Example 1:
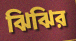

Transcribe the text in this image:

ঝিঝির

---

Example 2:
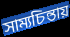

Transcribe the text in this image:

সাম্যচিন্তায়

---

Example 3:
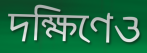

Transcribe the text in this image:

দক্ষিণেও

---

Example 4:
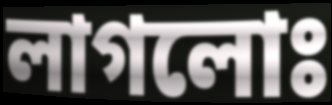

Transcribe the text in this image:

লাগলোঃ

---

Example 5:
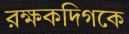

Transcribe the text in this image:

রক্ষকদিগকে